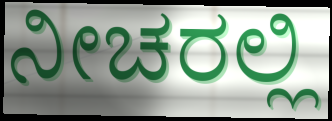
ನೀಚರಲ್ಲಿ